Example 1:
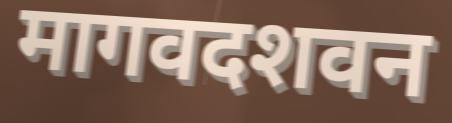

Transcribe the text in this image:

मागवदशवन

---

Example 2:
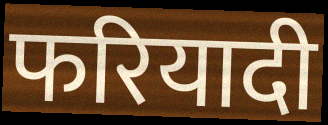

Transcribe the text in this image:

फरियादी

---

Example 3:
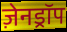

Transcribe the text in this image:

ज़ेनड्रॉप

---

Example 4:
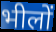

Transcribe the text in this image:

भीलों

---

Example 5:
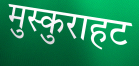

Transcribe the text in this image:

मुस्कुराहट